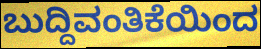
ಬುದ್ದಿವಂತಿಕೆಯಿಂದ